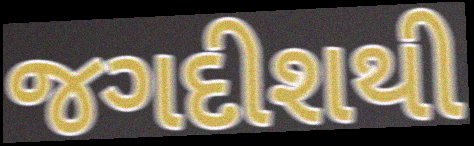
જગદીશથી